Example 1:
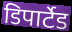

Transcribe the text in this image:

डिपार्टेड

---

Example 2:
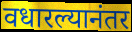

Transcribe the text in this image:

वधारल्यानंतर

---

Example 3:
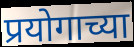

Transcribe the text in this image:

प्रयोगाच्या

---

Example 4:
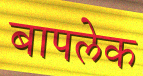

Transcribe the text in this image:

बापलेक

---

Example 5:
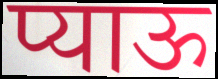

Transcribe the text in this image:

प्याऊ